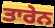
ਤਾਰੇਨ